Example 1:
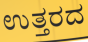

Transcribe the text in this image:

ಉತ್ತರದ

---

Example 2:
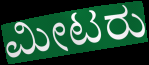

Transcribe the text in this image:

ಮೀಟರು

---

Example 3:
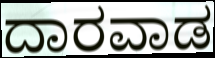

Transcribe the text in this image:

ದಾರವಾಡ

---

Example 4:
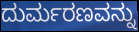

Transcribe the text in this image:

ದುರ್ಮರಣವನ್ನು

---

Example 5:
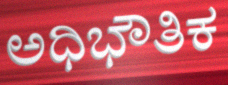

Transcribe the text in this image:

ಅಧಿಭೌತಿಕ